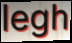
legh